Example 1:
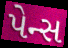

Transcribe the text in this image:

પેન્સ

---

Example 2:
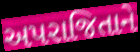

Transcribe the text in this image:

અપરાજિતાને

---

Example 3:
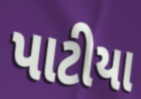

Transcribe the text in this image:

પાટીયા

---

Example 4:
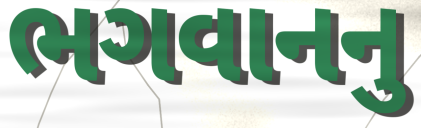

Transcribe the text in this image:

ભગવાનનુ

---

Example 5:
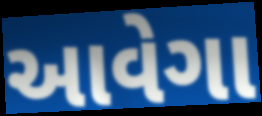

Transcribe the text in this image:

આવેગા